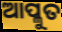
ଆପ୍ଳୁତ